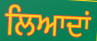
ਲਿਆਦਾਂ